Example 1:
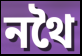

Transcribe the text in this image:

নথৈ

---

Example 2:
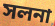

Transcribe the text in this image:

সলনা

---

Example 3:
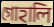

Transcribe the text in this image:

গোহালি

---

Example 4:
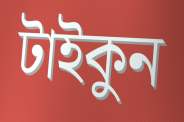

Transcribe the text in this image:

টাইকুন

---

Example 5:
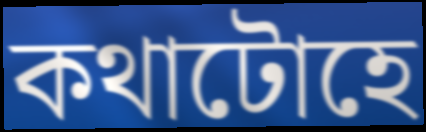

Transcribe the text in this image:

কথাটোহে